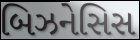
બિઝનેસિસ